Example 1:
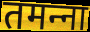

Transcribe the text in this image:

तमन्ना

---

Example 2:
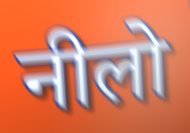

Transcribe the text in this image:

नीलो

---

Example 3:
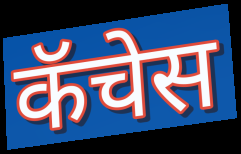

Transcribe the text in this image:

कॅचेस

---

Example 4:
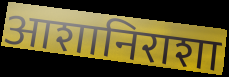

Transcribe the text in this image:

आशानिराशा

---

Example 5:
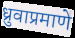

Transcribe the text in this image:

ध्रुवाप्रमाणे